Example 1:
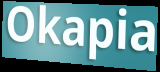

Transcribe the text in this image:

Okapia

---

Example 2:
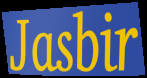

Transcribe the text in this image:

Jasbir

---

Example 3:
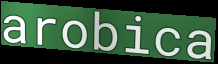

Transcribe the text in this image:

arobica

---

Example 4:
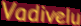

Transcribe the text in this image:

Vadivelu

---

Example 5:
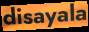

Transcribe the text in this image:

disayala